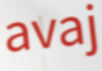
avaj